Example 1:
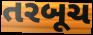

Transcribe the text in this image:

તરબૂચ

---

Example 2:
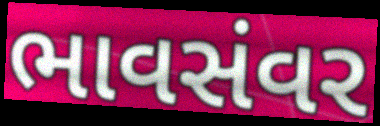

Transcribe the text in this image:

ભાવસંવર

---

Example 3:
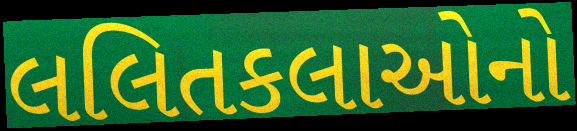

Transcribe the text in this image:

લલિતકલાઓનો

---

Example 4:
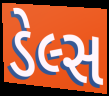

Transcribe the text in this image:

ડેલ્સ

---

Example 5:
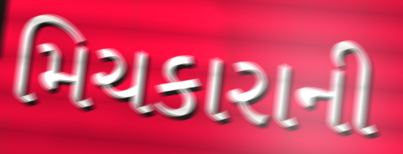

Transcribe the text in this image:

મિચકારાની